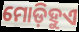
ମୋଡ଼ିହୁଏ